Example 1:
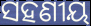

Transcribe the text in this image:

ସହଣୀୟ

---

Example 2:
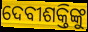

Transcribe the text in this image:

ଦେବୀଶକ୍ତିଙ୍କୁ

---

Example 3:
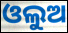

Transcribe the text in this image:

ଓଲୁଅ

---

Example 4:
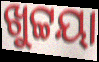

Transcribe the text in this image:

ଖୁଟ୍ଟୟା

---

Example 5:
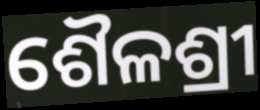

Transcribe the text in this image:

ଶୈଳଶ୍ରୀ